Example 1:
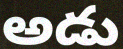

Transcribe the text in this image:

అడు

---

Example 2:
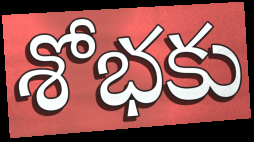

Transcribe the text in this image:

శోభకు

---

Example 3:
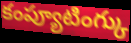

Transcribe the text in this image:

కంప్యూటింగ్కు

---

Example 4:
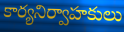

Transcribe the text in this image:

కార్యనిర్వాహకులు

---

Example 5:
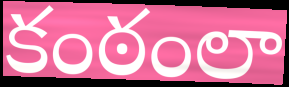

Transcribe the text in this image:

కంఠంలా